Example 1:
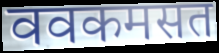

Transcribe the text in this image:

ववकमसत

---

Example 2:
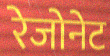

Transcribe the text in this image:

रेजोनेट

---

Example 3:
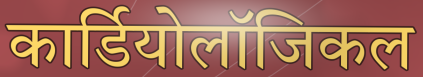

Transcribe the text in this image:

कार्डियोलॉजिकल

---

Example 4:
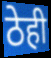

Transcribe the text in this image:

ठेही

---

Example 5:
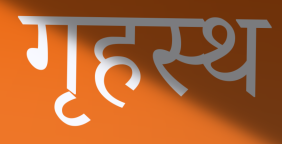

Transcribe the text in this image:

गृहस्थ